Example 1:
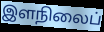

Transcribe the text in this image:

இளநிலைப்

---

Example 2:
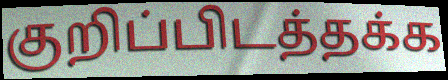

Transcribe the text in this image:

குறிப்பிடத்தக்க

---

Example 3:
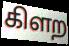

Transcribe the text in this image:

கிளற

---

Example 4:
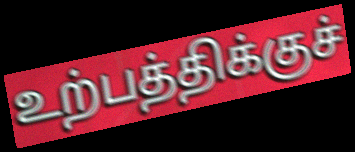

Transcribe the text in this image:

உற்பத்திக்குச்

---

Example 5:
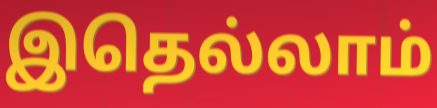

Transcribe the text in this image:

இதெல்லாம்